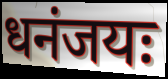
धनंजयः